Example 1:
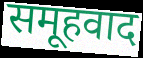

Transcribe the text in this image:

समूहवाद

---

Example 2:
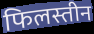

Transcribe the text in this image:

फिलस्तीन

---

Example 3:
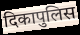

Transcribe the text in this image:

दिकापुलिस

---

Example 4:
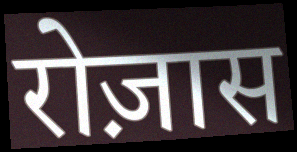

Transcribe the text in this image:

रोज़ास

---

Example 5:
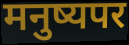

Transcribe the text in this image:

मनुष्यपर